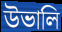
উভালি